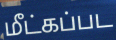
மீட்கப்பட